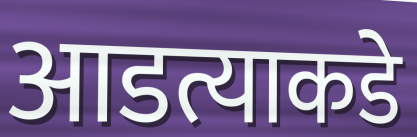
आडत्याकडे